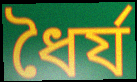
ধৈৰ্য